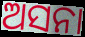
ଅସନା